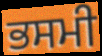
ਭਸਮੀ